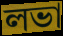
লভা